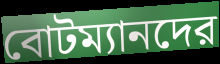
বোটম্যানদের